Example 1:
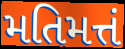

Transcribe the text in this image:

મતિમત્તં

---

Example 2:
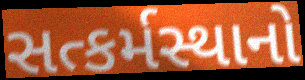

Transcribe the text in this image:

સત્કર્મસ્થાનો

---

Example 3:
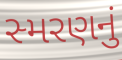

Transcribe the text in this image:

સ્મરણનું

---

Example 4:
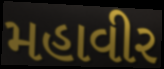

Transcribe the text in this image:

મહાવીર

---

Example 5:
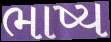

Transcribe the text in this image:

ભાષ્ય